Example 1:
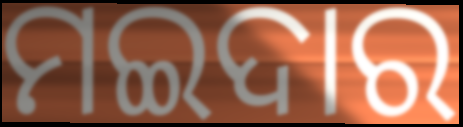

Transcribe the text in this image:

ମଇଦାର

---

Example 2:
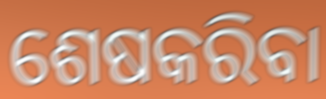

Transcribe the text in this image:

ଶେଷକରିବା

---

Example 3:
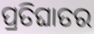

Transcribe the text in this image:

ପ୍ରତିଘାତର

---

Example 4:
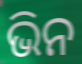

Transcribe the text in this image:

ଭିନ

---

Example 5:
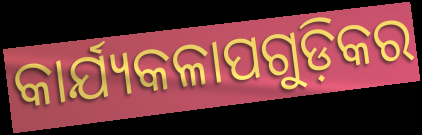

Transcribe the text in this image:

କାର୍ଯ୍ୟକଳାପଗୁଡ଼ିକର